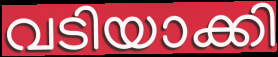
വടിയാക്കി